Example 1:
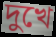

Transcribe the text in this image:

দুখে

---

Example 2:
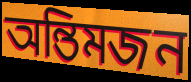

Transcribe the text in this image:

অন্তিমজন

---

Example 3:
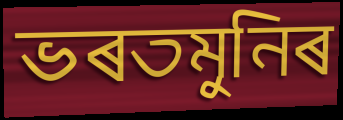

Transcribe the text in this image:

ভৰতমুনিৰ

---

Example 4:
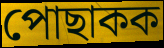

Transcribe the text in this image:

পোছাকক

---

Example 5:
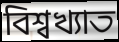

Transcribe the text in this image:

বিশ্বখ্যাত